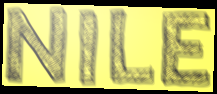
NILE